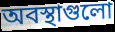
অবস্থাগুলো